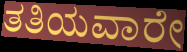
ತತಿಯವಾರೇ